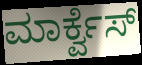
ಮಾರ್ಕ್ವೆಸ್